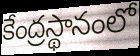
కేంద్రస్థానంలో